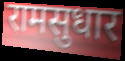
रामसुधार